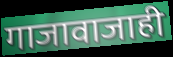
गाजावाजाही